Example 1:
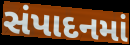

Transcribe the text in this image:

સંપાદનમાં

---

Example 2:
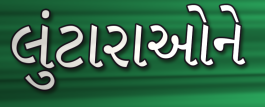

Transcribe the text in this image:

લુંટારાઓને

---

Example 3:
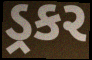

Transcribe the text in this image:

ડ્રકર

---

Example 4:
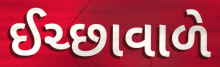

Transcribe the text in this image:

ઈચ્છાવાળે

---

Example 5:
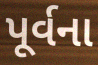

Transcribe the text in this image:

પૂર્વના